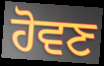
ਹੋਵਣ